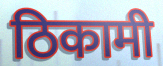
ठिकामी